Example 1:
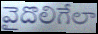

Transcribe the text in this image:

వైదొలిగేలా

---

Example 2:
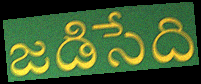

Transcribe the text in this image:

జడిసేది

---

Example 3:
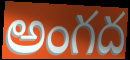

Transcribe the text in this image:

అంగద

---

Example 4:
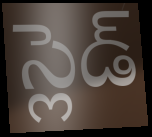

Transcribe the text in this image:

స్లెడ్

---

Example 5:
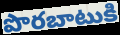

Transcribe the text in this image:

పొరబాటుకి